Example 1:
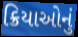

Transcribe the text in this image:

ક્રિયાઓનું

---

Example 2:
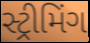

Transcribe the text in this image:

સ્ટ્રીમિંગ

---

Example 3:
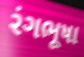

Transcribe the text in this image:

રંગભૂષા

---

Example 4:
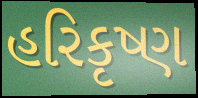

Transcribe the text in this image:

હરિકૃષ્ણ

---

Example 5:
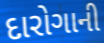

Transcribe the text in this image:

દારોગાની